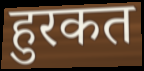
हुरकत